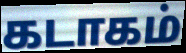
கடாகம்